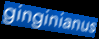
ginginianus